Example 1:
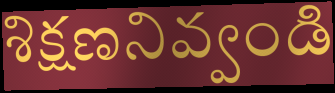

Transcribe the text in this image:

శిక్షణనివ్వండి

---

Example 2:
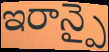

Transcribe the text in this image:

ఇరాన్పై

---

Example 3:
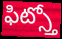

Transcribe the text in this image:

ఫిట్స్తో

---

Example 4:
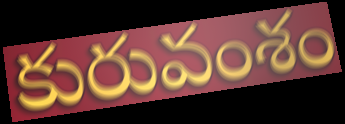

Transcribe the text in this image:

కురువంశం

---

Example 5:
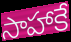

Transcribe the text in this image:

సాహాకే